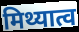
मिथ्यात्व